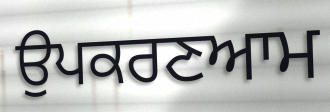
ਉਪਕਰਣਆਮ